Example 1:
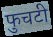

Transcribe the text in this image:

फुचटी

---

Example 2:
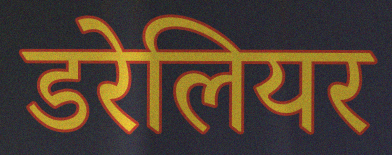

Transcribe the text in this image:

डरेलियर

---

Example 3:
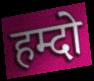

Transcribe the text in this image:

हम्दो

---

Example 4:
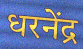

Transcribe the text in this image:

धरनेंद्र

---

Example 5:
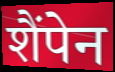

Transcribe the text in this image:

शैंपेन